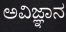
ಅವಿಜ್ಞಾನ